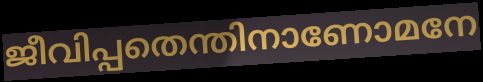
ജീവിപ്പതെന്തിനാണോമനേ